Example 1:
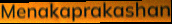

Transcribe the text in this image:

Menakaprakashan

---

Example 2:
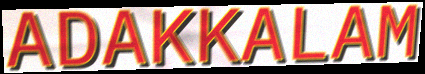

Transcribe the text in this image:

ADAKKALAM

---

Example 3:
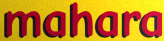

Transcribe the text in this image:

mahara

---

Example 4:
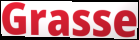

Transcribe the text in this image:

Grasse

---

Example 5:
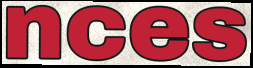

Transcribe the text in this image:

nces